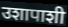
उशापाशी